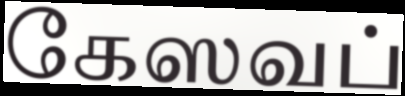
கேஸவப்